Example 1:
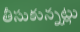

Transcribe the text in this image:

తీసుకున్నట్లు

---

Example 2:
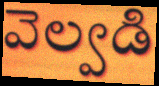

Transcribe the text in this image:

వెల్వడి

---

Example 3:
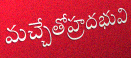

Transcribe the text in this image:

మచ్చేతోహ్రదభువి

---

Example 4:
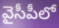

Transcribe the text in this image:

వైసీపీలో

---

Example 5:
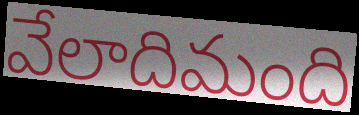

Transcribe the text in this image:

వేలాదిమంది